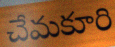
చేమకూరి